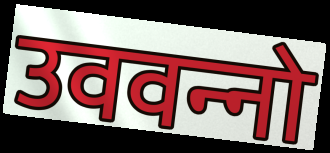
उववन्नो